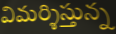
విమర్శిస్తున్న